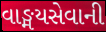
વાઙ્મયસેવાની